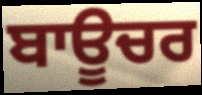
ਬਾਊਚਰ